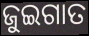
ଜୁଇଗାତ